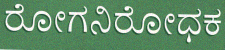
ರೋಗನಿರೋಧಕ